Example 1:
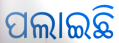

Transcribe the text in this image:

ପଲାଇଛି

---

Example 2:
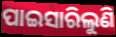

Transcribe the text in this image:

ପାଇସାରିଲୁଣି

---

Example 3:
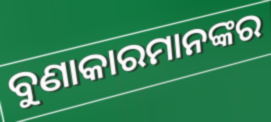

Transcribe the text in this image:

ବୁଣାକାରମାନଙ୍କର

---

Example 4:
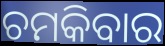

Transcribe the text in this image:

ଚମକିବାର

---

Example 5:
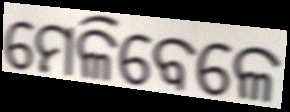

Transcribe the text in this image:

ମେଳିବେଳେ